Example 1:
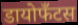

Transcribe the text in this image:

डायोफँटस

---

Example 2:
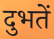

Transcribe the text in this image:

दुभतें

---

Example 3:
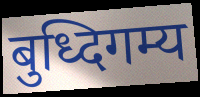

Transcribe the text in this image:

बुध्दिगम्य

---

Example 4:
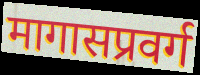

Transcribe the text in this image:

मागासप्रवर्ग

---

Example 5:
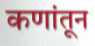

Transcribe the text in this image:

कणांतून